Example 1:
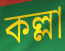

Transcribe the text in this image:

কল্লা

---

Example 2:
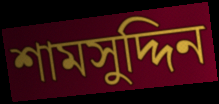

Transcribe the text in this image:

শামসুদ্দিন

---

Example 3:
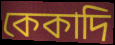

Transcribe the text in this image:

কেকাদি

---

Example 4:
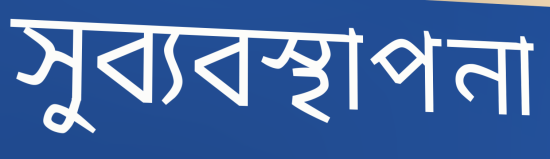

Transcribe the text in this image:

সুব্যবস্থাপনা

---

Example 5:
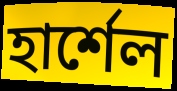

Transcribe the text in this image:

হার্শেল